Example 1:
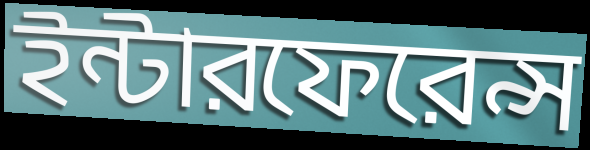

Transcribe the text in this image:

ইন্টারফেরেন্স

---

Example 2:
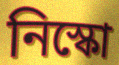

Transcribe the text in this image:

নিস্কো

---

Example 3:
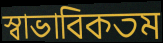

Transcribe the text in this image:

স্বাভাবিকতম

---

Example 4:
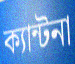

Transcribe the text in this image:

ক্যান্টনা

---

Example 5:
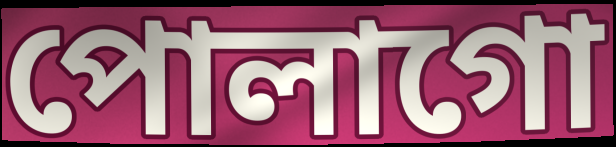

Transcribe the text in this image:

পোলাগো